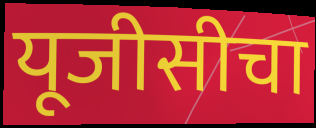
यूजीसीचा